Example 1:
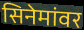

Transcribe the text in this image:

सिनेमांवर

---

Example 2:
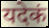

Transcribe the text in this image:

यदेकं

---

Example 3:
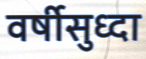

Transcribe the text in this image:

वर्षीसुध्दा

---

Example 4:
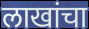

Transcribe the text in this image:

लाखांचा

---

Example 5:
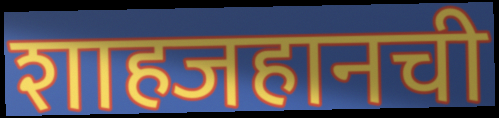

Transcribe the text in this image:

शाहजहानची